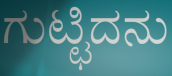
ಗುಟ್ಟಿದನು